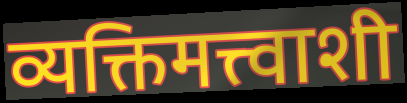
व्यक्तिमत्त्वाशी